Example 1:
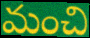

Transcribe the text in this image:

మంచి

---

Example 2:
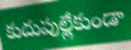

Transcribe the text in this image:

కుదుపుల్లేకుండా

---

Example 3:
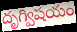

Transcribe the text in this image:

దృగ్విషయం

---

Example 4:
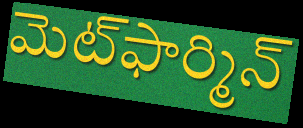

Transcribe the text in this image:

మెట్‌ఫార్మిన్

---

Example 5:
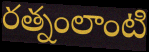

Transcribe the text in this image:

రత్నంలాంటి